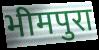
भीमपुरा